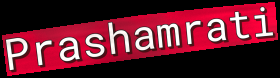
Prashamrati